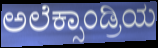
ಅಲೆಕ್ಸಾಂಡ್ರಿಯ